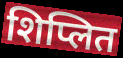
शिप्लित